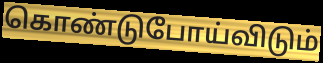
கொண்டுபோய்விடும்